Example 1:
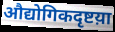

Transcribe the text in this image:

औद्योगिकदृष्टय़ा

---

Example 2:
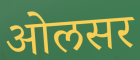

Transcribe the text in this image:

ओलसर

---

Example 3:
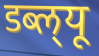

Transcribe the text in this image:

डब्ल्यू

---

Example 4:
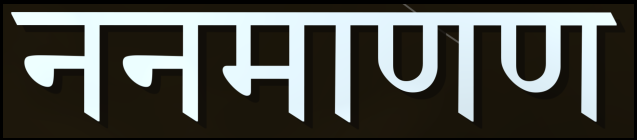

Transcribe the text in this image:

ननमाणण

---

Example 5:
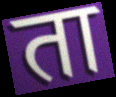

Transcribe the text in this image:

ता